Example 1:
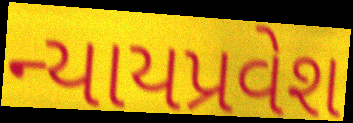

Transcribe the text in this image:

ન્યાયપ્રવેશ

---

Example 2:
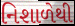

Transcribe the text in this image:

નિશાળેથી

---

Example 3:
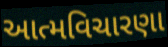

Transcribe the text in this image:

આત્મવિચારણા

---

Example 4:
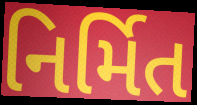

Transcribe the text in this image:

નિર્મિત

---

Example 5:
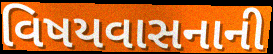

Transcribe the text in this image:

વિષયવાસનાની